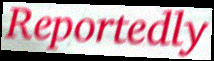
Reportedly